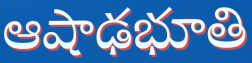
ఆషాఢభూతి